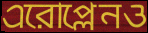
এরোপ্লেনও